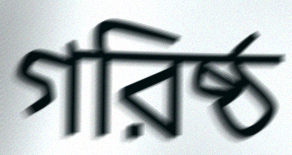
গরিষ্ঠ